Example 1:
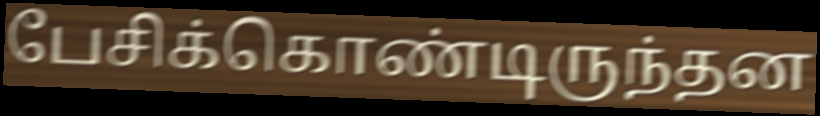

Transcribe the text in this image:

பேசிக்கொண்டிருந்தன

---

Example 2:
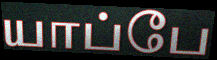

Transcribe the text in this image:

யாப்பே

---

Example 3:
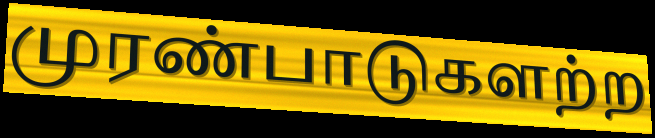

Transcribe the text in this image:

முரண்பாடுகளற்ற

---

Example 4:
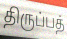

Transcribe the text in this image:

திருப்பத்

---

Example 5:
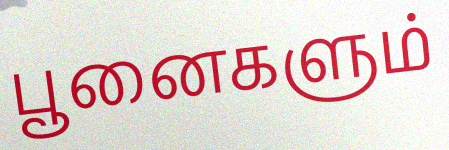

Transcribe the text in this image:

பூனைகளும்